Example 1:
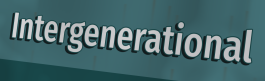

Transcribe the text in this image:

Intergenerational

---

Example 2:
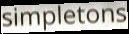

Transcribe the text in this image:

simpletons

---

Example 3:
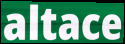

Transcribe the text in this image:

altace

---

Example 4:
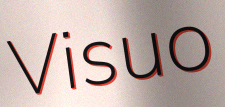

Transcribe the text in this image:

Visuo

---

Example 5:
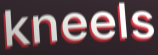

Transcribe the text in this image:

kneels